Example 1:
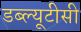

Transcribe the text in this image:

डब्ल्यूटीसी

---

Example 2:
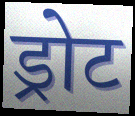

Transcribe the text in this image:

ड्रोट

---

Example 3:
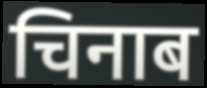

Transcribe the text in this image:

चिनाब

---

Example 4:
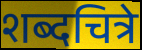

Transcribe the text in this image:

शब्दचित्रे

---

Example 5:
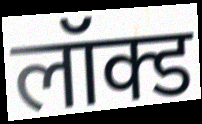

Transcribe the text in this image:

लॉक्ड